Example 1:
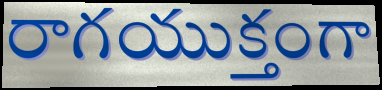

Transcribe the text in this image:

రాగయుక్తంగా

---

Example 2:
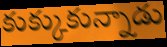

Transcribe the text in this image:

కుక్కుకున్నాడు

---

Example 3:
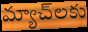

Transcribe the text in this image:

మ్యాచ్‌లకు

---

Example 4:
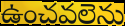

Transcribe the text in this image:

ఉంచవలెను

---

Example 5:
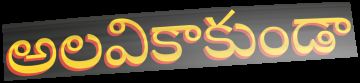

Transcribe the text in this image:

అలవికాకుండా